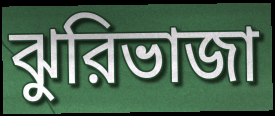
ঝুরিভাজা